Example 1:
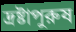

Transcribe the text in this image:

দ্রষ্টাপুরুষ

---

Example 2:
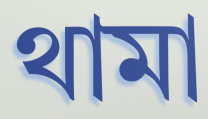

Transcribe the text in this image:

থামা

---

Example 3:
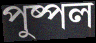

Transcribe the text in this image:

পুষ্পল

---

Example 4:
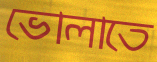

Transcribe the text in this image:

ভোলাতে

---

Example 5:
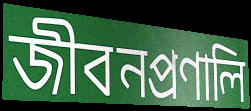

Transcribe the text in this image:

জীবনপ্রণালি